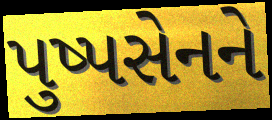
પુષ્પસેનને